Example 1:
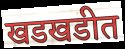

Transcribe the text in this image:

खडखडीत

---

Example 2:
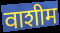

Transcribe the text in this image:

वाशीम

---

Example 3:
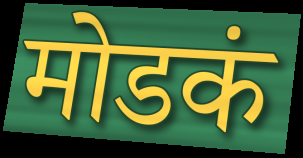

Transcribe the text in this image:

मोडकं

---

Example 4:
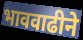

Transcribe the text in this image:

भाववाढीने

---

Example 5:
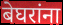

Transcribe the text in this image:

बेघरांना